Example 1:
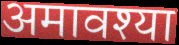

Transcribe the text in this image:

अमावश्या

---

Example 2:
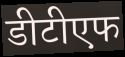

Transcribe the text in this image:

डीटीएफ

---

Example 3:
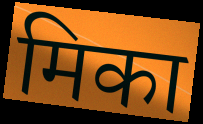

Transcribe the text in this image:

मिका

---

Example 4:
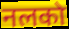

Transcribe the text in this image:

नलको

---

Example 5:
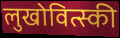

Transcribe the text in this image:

लुखोवित्स्की